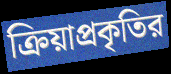
ক্রিয়াপ্রকৃতির